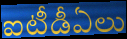
ఐటీడీఏలు